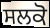
ਸਲਕੋ